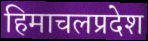
हिमाचलप्रदेश